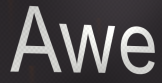
Awe